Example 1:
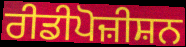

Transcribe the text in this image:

ਰੀਡੀਪੋਜ਼ੀਸ਼ਨ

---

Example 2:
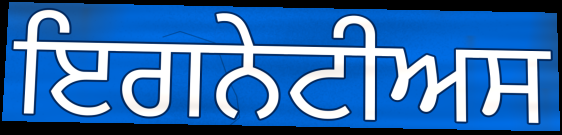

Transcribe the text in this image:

ਇਗਨੇਟੀਅਸ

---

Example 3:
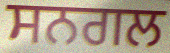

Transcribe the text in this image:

ਸਨਗਲ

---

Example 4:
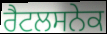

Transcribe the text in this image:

ਰੈਟਲਸਨੇਕ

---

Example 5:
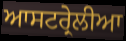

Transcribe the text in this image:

ਆਸਟਰ੍ਰੇਲੀਆ